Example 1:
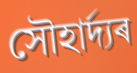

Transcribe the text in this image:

সৌহাৰ্দ্যৰ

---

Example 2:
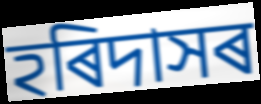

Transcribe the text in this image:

হৰিদাসৰ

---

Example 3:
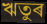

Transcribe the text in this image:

ঋতুৰ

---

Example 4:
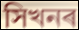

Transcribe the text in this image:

সিখনৰ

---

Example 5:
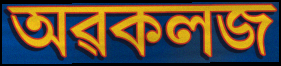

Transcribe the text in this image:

অৱকলজ